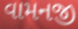
વામનજી